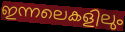
ഇന്നലെകളിലും